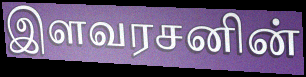
இளவரசனின்